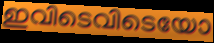
ഇവിടെവിടെയോ